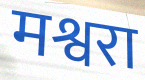
मश्वरा